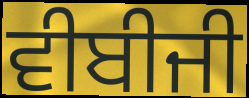
ਵੀਬੀਜੀ